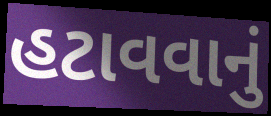
હટાવવાનું